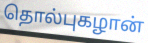
தொல்புகழான்